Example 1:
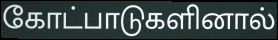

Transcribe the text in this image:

கோட்பாடுகளினால்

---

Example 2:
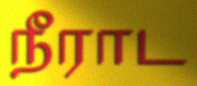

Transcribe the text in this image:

நீராட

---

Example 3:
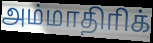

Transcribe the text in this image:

அம்மாதிரிக்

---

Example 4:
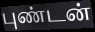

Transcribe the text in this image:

புண்டன்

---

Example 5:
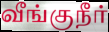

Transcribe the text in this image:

வீங்குநீர்